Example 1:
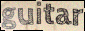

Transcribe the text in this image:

guitar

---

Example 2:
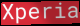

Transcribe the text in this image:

Xperia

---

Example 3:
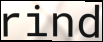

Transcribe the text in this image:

rind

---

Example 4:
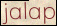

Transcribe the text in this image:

jalap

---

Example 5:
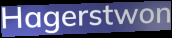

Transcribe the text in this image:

Hagerstwon